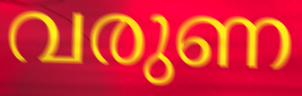
വരുണ